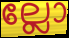
ല്ലോ